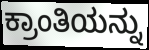
ಕ್ರಾಂತಿಯನ್ನು